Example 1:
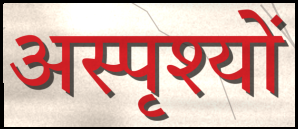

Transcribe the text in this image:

अस्पृश्यों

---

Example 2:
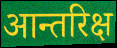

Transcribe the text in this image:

आन्तरिक्ष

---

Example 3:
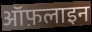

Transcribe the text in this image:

ऑफ़लाइन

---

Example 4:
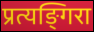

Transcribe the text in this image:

प्रत्यङ्गिरा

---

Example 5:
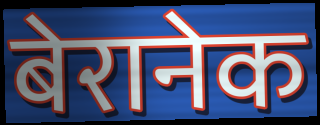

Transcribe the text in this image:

बेरानेक